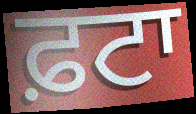
ਫ਼ਟਾ